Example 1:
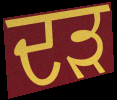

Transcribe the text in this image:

ਦੜ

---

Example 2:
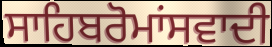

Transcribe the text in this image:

ਸਾਹਿਬਰੋਮਾਂਸਵਾਦੀ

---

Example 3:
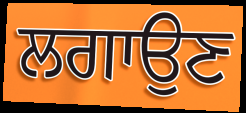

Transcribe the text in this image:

ਲਗਾਉਣ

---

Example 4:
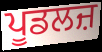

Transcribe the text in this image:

ਪੂਡਲਜ਼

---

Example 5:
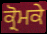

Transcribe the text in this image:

ਕ੍ਰੋਮਕੇ